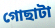
গোছাটা